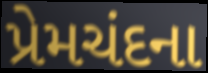
પ્રેમચંદના